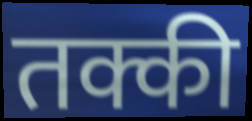
तक्की